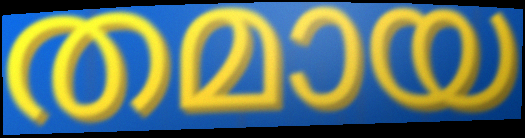
തമായ